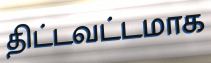
திட்டவட்டமாக